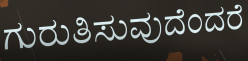
ಗುರುತಿಸುವುದೆಂದರೆ